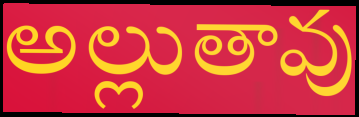
అల్లుతావు